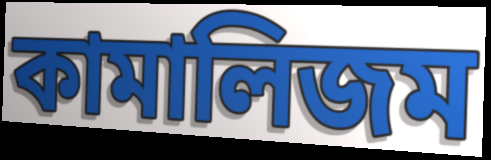
কামালিজম